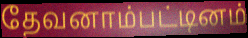
தேவனாம்பட்டினம்